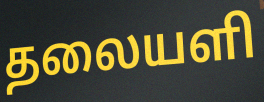
தலையளி